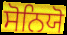
ਸੋਨਿਯੋ